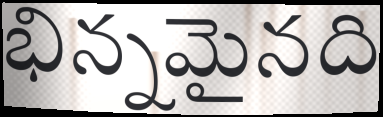
భిన్నమైనది